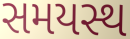
સમયસ્થ